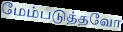
மேம்படுத்தவோ